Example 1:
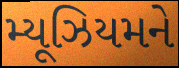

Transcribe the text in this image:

મ્યૂઝિયમને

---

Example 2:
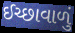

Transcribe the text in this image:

ઈચ્છાવાળું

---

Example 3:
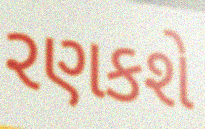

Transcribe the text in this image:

રણકશે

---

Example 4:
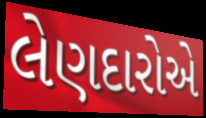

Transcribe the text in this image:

લેણદારોએ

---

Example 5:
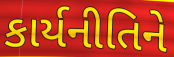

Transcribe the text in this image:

કાર્યનીતિને